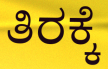
ತಿರಕ್ಕೆ